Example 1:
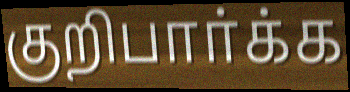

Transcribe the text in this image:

குறிபார்க்க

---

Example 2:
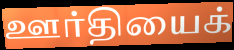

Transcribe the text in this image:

ஊர்தியைக்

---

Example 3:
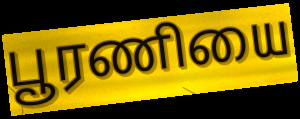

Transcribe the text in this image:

பூரணியை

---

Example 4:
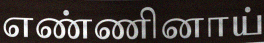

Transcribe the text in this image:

எண்ணினாய்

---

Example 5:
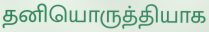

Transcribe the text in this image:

தனியொருத்தியாக